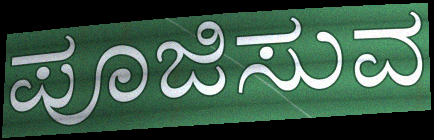
ಪೂಜಿಸುವ